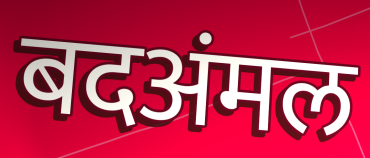
बदअंमल